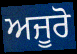
ਅਜੂਰੋ